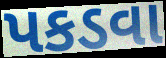
પકડવા